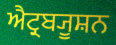
ਐਟ੍ਰਬ੍ਯੂਸ਼ਨ